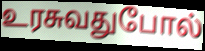
உரசுவதுபோல்